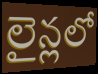
లైన్లలో